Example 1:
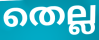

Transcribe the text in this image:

തെല്ല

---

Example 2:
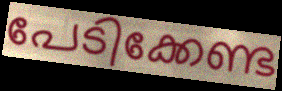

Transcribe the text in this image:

പേടിക്കേണ്ട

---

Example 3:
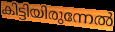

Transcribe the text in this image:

കിട്ടിയിരുന്നേൽ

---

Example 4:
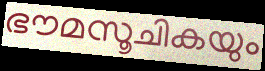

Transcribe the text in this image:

ഭൗമസൂചികയും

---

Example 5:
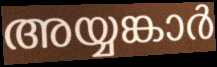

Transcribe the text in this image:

അയ്യങ്കാർ